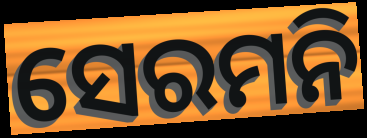
ସେରମନି